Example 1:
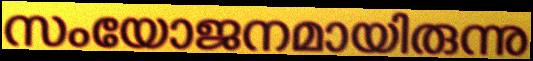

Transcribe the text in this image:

സംയോജനമായിരുന്നു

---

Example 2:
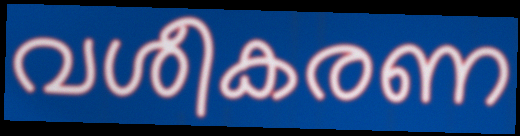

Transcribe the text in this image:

വശീകരണ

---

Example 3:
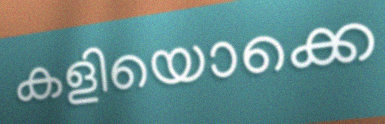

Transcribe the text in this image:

കളിയൊക്കെ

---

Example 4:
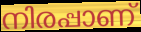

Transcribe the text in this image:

നിരപ്പാണ്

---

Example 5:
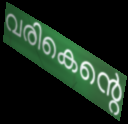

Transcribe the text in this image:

വരികെന്റെ